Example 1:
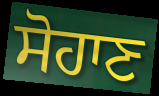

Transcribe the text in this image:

ਸੋਹਾਣ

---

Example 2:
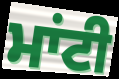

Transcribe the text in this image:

ਮਾਂਟੀ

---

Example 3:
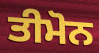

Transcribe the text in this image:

ਤੀਮੋਨ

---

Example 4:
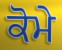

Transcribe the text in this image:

ਕੋਮੇ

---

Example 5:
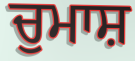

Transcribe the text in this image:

ਚੁਮਾਸ਼